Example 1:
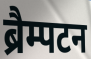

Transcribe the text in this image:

ब्रैम्पटन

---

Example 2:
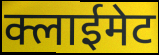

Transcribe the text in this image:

क्लाईमेट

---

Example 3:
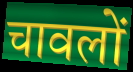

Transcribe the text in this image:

चावलों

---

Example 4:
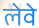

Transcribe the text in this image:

लेवे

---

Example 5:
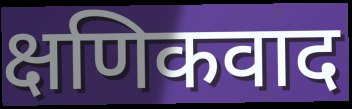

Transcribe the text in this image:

क्षणिकवाद